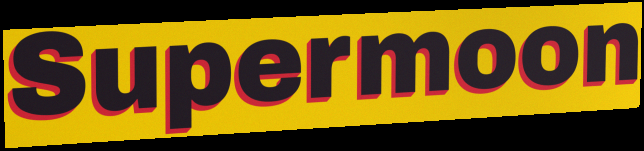
Supermoon